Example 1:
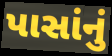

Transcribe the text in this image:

પાસાંનું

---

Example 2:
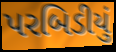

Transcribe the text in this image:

પરબિડીયું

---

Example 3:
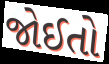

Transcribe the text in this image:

જોઈતો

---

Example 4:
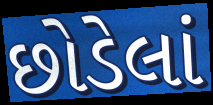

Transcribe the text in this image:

છોડેલાં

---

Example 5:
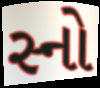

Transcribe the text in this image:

સ્નો